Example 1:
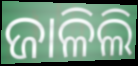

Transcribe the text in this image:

ଜାଳିଲି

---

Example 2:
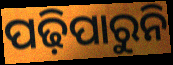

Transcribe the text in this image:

ପଢ଼ିପାରୁନି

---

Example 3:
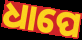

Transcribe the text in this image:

ଧାପେ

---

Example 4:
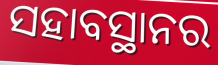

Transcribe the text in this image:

ସହାବସ୍ଥାନର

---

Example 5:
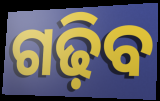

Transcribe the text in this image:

ଗଢ଼ିବ